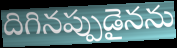
దిగినప్పుడైనను